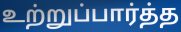
உற்றுப்பார்த்த